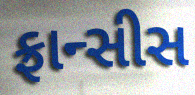
ફ્રાન્સીસ